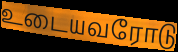
உடையவரோடு